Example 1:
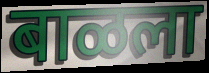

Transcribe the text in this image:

बाळला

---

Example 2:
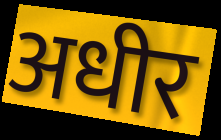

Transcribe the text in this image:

अधीर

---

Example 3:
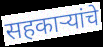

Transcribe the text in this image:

सहकाऱ्यांचे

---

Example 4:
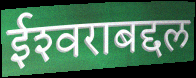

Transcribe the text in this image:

ईश्वराबद्दल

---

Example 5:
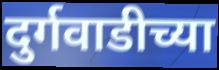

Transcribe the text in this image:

दुर्गवाडीच्या